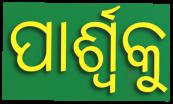
ପାର୍ଶ୍ଵକୁ